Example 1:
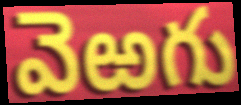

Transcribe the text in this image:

వెఱగు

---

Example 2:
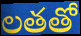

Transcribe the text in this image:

లతతో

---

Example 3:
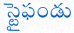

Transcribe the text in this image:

స్టైఫండు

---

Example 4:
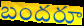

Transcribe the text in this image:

బందరూ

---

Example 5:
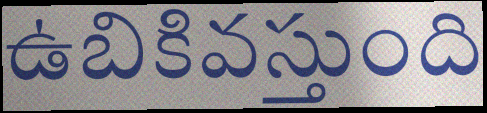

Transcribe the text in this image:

ఉబికివస్తుంది